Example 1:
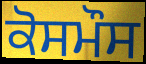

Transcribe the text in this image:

ਕੋਸਮੌਸ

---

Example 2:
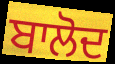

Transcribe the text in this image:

ਬਾਲੋਦ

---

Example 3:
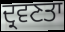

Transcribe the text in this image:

ਦ੍ਰਵਣਤਾ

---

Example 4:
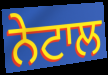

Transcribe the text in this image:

ਨੇਟਾਲ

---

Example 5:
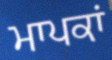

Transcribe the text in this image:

ਮਾਪਕਾਂ